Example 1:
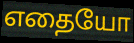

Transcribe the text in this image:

எதையோ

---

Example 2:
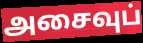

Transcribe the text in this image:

அசைவுப்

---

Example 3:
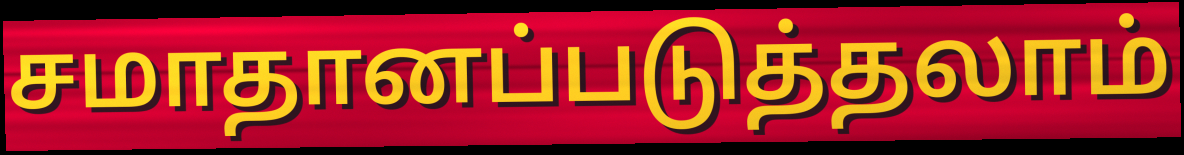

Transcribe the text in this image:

சமாதானப்படுத்தலாம்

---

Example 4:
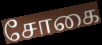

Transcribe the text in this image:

சோகை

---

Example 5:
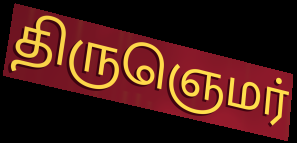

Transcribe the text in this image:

திருஞெமர்